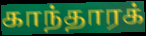
காந்தாரக்